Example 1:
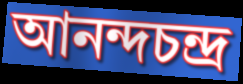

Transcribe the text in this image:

আনন্দচন্দ্র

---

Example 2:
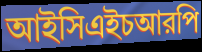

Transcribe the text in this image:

আইসিএইচআরপি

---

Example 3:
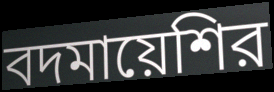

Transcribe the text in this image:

বদমায়েশির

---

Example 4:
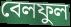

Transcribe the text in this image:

বেলফুল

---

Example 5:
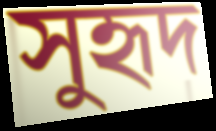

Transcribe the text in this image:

সুহৃদ